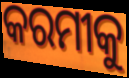
କରମୀକୁ